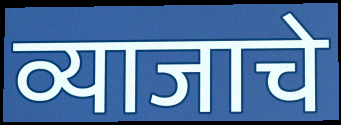
व्याजाचे